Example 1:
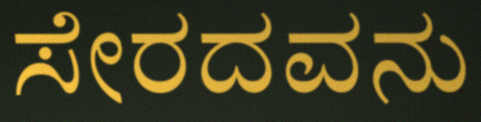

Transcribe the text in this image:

ಸೇರದವನು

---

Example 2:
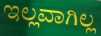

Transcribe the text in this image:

ಇಲ್ಲವಾಗಿಲ್ಲ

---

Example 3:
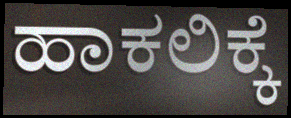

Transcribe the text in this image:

ಹಾಕಲಿಕ್ಕೆ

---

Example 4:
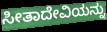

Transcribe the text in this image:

ಸೀತಾದೇವಿಯನ್ನು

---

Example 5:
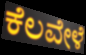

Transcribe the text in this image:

ಕೆಲವೇಳೆ